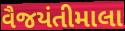
વૈજયંતીમાલા